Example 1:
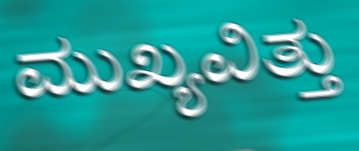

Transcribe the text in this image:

ಮುಖ್ಯವಿತ್ತು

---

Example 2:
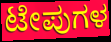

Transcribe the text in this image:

ಟೇಪುಗಳ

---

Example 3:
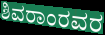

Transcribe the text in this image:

ಶಿವರಾಂರವರ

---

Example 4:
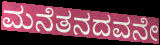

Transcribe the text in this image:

ಮನೆತನದವನೇ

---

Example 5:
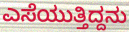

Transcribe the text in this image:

ಎಸೆಯುತ್ತಿದ್ದನು